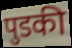
पुडकी